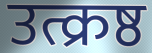
उत्क्रष्ठ